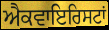
ਐਕਵਾਇਰਿਸਟਾਂ